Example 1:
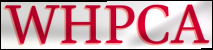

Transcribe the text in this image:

WHPCA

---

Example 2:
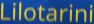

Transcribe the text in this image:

Lilotarini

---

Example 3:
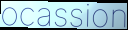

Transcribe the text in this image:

ocassion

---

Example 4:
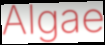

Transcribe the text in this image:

Algae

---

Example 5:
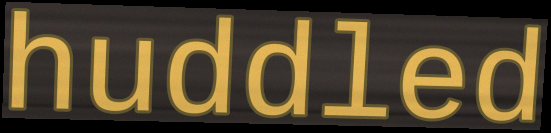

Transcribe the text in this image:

huddled